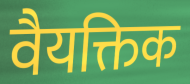
वैयक्तिक